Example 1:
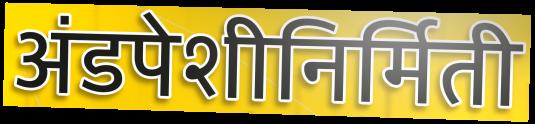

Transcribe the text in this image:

अंडपेशीनिर्मिती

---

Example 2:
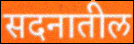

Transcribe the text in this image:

सदनातील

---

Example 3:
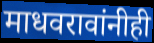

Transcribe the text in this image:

माधवरावांनीही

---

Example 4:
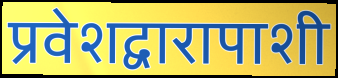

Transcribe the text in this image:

प्रवेशद्वारापाशी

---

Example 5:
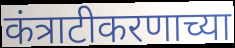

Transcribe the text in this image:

कंत्राटीकरणाच्या